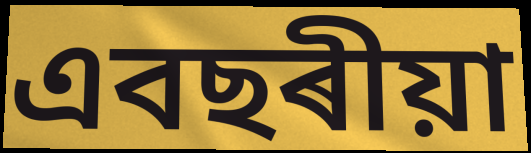
এবছৰীয়া